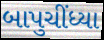
બાપુચીંધ્યા